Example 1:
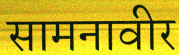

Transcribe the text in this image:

सामनावीर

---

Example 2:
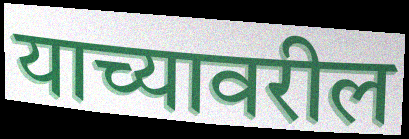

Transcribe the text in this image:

याच्यावरील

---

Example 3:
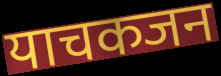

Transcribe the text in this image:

याचकजन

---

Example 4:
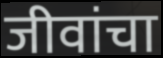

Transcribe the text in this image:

जीवांचा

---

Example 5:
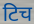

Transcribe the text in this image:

टिच